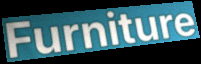
Furniture